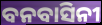
ବନବାସିନୀ